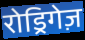
रोड्रिगेज़